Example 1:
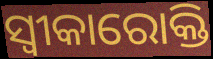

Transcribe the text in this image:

ସ୍ୱୀକାରୋକ୍ତି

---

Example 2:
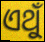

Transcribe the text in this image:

ଏଥୁଁ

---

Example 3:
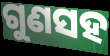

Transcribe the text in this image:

ଗୁଣସହ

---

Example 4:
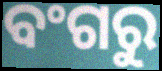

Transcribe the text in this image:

ବଂଗରୁ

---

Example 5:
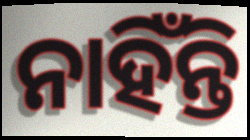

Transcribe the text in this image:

ନାହିଁନ୍ତି